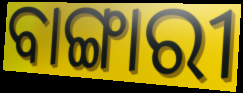
ବାଙ୍ଗାରୀ